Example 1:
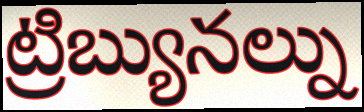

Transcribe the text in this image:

ట్రిబ్యునల్ను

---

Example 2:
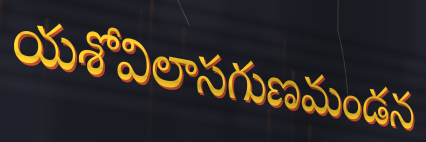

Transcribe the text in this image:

యశోవిలాసగుణమండన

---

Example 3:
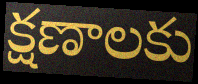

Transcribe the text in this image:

క్షణాలకు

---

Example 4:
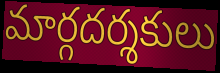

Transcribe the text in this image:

మార్గదర్శకులు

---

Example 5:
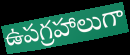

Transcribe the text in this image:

ఉపగ్రహాలుగా